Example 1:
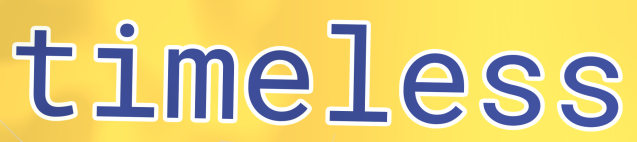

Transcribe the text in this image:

timeless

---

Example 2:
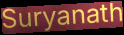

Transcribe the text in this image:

Suryanath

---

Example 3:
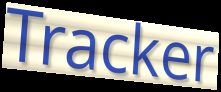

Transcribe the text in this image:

Tracker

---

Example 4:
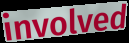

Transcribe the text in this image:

involved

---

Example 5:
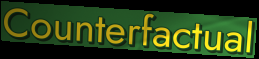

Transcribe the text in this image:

Counterfactual